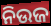
ନିଉଜ